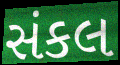
સંકલ